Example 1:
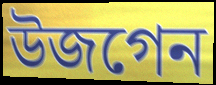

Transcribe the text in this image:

উজগেন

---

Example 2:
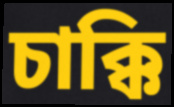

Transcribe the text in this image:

চাক্কি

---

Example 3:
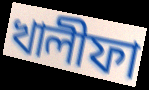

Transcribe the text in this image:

খালীফা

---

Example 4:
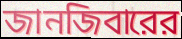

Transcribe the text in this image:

জানজিবারের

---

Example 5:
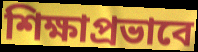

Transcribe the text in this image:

শিক্ষাপ্রভাবে